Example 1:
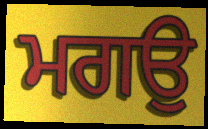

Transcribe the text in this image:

ਮਗਉ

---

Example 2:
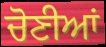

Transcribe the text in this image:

ਚੋਣੀਆਂ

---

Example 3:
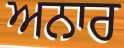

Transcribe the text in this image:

ਅਨਾਰ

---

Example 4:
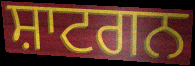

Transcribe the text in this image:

ਸ਼ਾਟਗਨ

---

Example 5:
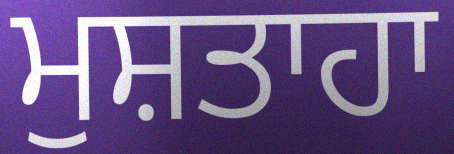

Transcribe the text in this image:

ਮੁਸ਼ਤਾਹਾ